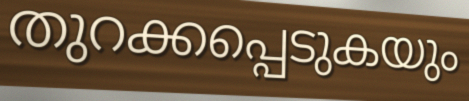
തുറക്കപ്പെടുകയും